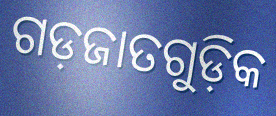
ଗଡ଼ଜାତଗୁଡ଼ିକ